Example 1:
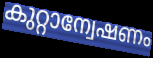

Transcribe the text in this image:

കുറ്റാന്വേഷണം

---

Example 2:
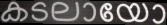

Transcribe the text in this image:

കടലായോ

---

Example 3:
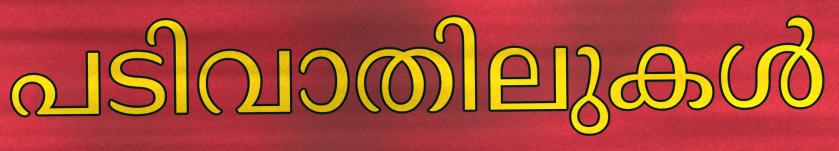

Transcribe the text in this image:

പടിവാതിലുകൾ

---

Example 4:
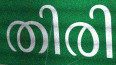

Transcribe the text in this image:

തിരി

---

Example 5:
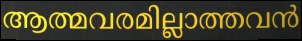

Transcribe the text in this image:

ആത്മവരമില്ലാത്തവൻ